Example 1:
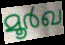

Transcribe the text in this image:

മൂർഖ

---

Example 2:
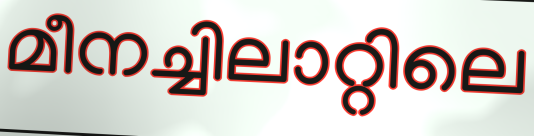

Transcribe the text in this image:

മീനച്ചിലാറ്റിലെ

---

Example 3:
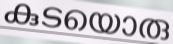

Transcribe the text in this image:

കുടയൊരു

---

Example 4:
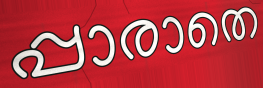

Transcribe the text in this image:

പ്പാരാതെ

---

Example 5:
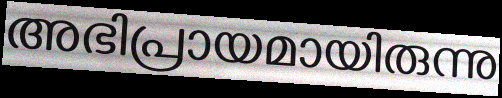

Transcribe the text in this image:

അഭിപ്രായമായിരുന്നു